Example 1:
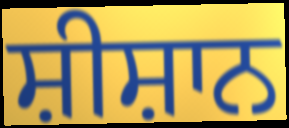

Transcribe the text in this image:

ਸ਼ੀਸ਼ਾਨ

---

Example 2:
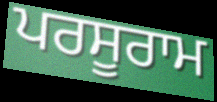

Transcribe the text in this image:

ਪਰਸੂਰਾਮ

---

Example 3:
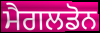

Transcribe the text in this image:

ਮੈਗਲਡੋਨ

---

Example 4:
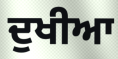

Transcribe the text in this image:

ਦੁਖੀਆ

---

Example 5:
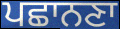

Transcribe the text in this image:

ਪਛਾਨਣਾ